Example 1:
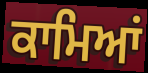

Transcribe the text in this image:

ਕਾਮਿਆਂ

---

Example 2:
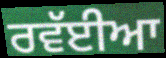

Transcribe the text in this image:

ਰਵੱਈਆ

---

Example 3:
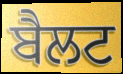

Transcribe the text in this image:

ਬੈਲਟ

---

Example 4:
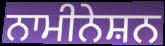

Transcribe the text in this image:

ਨਾਮੀਨੇਸ਼ਨ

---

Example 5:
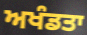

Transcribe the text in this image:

ਅਖੰਡਤਾ